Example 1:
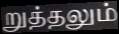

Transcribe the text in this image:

றுத்தலும்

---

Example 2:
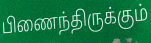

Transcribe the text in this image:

பிணைந்திருக்கும்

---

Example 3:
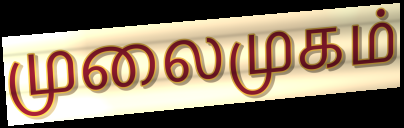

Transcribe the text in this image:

முலைமுகம்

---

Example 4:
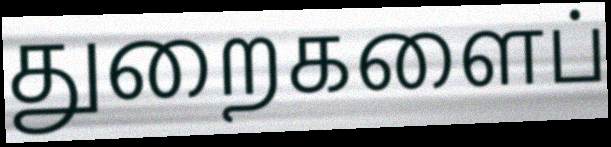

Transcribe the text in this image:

துறைகளைப்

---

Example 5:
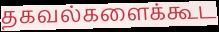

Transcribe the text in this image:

தகவல்களைக்கூட